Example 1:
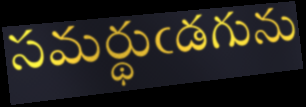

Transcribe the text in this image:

సమర్థుఁడగును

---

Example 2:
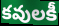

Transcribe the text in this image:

కవులకీ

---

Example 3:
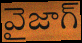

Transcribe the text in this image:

వైజాగ్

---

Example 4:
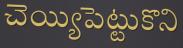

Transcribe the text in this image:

చెయ్యిపెట్టుకొని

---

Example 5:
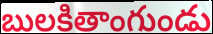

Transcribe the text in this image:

బులకితాంగుండు